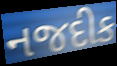
નજદીક